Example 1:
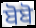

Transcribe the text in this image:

ਬੋਬੋ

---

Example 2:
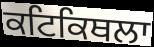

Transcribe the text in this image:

ਕਟਿਕਿਥਲਾ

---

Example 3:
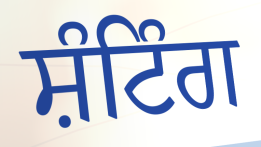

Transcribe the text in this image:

ਸ਼ੰਟਿੰਗ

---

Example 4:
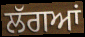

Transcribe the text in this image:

ਲੱਗਆਂ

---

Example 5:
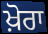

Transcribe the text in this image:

ਖ਼ੋਰਾ